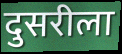
दुसरीला